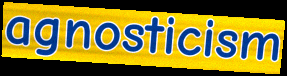
agnosticism